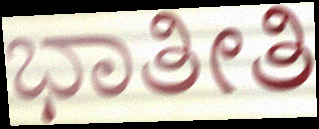
ಭಾತೀತಿ